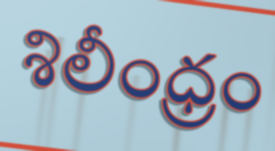
శిలీంధ్రం